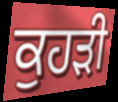
ਕੁਹੜੀ